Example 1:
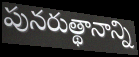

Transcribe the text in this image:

పునరుత్థానాన్ని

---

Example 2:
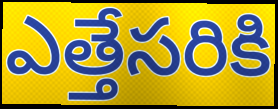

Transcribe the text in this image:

ఎత్తేసరికి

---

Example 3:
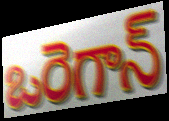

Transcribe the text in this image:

ఒరెగాన్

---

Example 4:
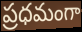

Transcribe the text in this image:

ప్రధమంగా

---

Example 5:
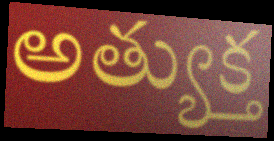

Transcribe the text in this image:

అత్యుక్త